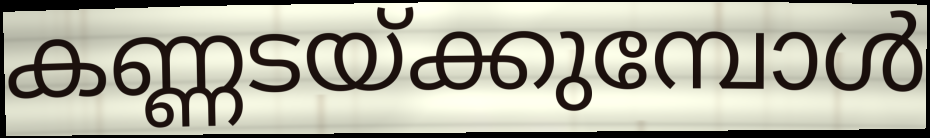
കണ്ണടയ്ക്കുമ്പോൾ